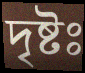
দৃষ্টঃ